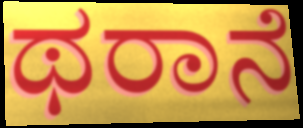
ಥರಾನೆ